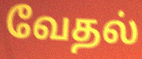
வேதல்